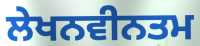
ਲੇਖਨਵੀਨਤਮ